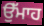
ਉੱਮਾਹ